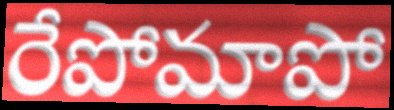
రేపోమాపో